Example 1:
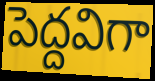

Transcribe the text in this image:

పెద్దవిగా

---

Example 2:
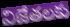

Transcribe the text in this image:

విజేతలకు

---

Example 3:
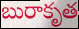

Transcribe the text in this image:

బురాకృత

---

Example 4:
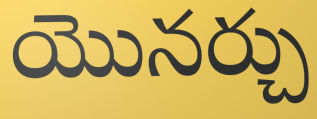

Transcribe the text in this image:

యొనర్చు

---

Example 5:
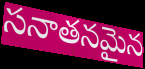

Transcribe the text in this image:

సనాతనమైన